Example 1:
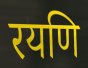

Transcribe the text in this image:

रयणि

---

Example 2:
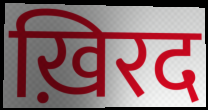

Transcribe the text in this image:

ख़िरद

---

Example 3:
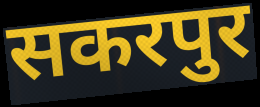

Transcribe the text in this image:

सकरपुर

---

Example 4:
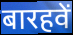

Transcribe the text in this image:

बारहवें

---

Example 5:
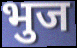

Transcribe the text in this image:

भुज